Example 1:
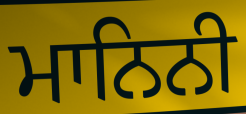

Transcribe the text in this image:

ਮਾਨਿਨੀ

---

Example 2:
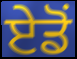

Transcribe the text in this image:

ਏਡੋਂ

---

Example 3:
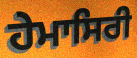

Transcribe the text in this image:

ਹੇਮਾਸਿਰੀ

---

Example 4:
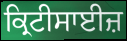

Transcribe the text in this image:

ਕ੍ਰਿਟੀਸਾਈਜ਼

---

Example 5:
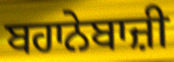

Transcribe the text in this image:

ਬਹਾਨੇਬਾਜ਼ੀ